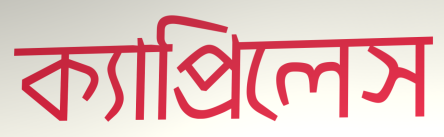
ক্যাপ্রিলেস